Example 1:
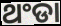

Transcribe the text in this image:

ଥଂଡା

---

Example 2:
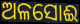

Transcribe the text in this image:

ଅଳସୋଈ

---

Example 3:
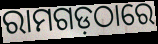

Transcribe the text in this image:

ରାମଗଡ଼ଠାରେ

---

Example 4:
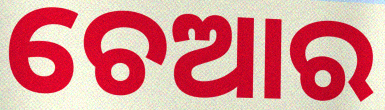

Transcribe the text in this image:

ଚେଆର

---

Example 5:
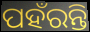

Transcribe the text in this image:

ପହଁରନ୍ତି